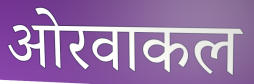
ओरवाकल